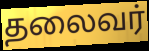
தலைவர்